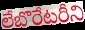
లేబొరేటరీని